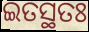
ଇତସ୍ଥତଃ